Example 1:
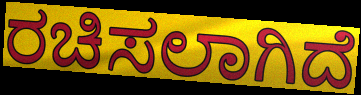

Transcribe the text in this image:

ರಚಿಸಲಾಗಿದೆ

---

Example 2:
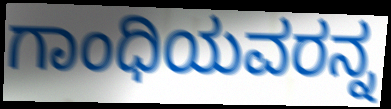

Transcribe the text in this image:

ಗಾಂಧಿಯವರನ್ನ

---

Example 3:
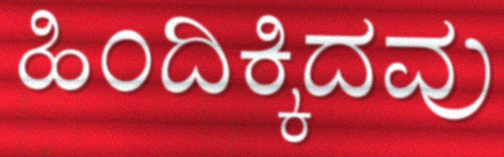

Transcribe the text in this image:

ಹಿಂದಿಕ್ಕಿದವು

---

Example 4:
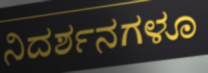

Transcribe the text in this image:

ನಿದರ್ಶನಗಳೂ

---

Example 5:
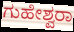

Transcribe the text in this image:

ಗುಹೇಶ್ವರಾ